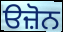
ੳਜ਼ੋਨ